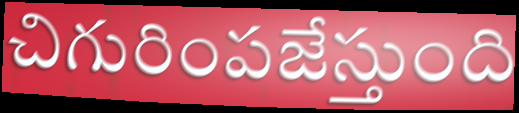
చిగురింపజేస్తుంది